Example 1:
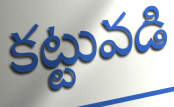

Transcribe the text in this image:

కట్టువడి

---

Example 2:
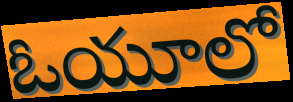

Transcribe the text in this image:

ఓయూలో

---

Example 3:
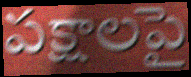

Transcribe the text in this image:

పక్షాలపై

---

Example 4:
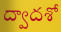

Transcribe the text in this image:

ద్వాదశో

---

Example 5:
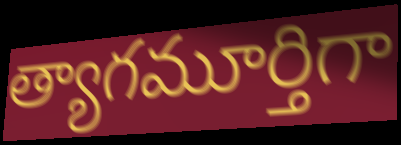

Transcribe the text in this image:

త్యాగమూర్తిగా